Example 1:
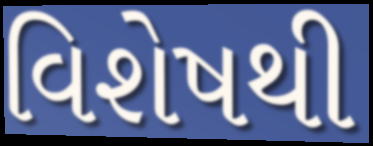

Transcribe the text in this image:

વિશેષથી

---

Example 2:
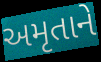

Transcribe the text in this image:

અમૃતાને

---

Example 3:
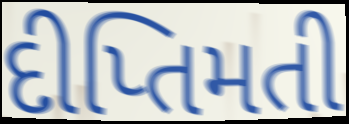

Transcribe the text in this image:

દીપ્તિમતી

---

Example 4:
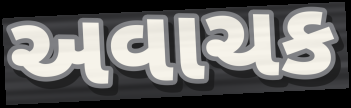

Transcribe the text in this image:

અવાચક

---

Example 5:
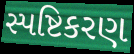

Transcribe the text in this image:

સ્પષ્ટિકરણ